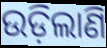
ଉଡ଼ିଲାଣି